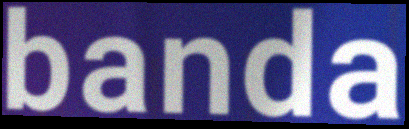
banda